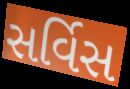
સર્વિસ